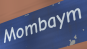
Mombaym